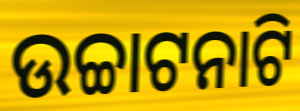
ଉଚ୍ଚାଟନାଟି